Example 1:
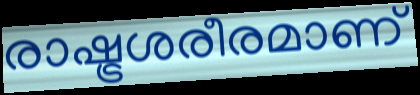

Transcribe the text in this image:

രാഷ്ട്രശരീരമാണ്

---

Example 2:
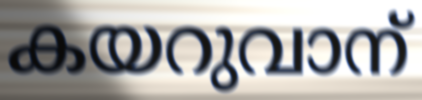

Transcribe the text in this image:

കയറുവാന്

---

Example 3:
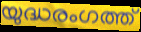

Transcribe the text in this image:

യുദ്ധരംഗത്ത്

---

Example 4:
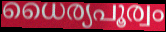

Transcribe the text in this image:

ധൈര്യപൂര്വം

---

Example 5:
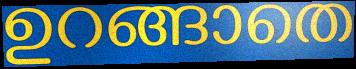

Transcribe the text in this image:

ഉറങ്ങാതെ